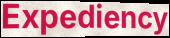
Expediency